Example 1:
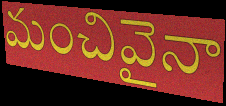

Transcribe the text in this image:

మంచివైనా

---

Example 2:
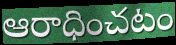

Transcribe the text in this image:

ఆరాధించటం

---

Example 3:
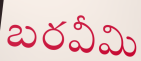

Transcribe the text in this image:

బరవీమి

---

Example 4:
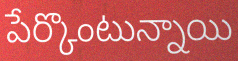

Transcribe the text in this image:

పేర్కొంటున్నాయి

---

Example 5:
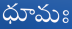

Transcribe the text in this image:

ధూమః